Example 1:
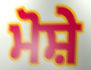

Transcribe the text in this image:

ਮੋਸ਼ੇ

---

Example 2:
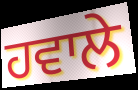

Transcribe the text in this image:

ਹਵਾਲੇ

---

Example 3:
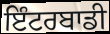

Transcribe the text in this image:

ਇੰਟਰਬਾਡੀ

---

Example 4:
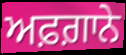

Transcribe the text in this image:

ਅਫ਼ਗ਼ਾਨੇ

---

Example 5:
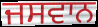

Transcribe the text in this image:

ਜਸਵਾਨ